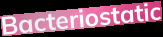
Bacteriostatic